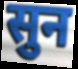
सुन